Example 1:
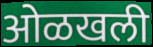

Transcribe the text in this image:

ओळखली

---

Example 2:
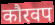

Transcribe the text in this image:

कौरवप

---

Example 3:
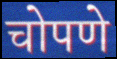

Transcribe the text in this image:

चोपणे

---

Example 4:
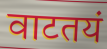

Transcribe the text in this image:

वाटतयं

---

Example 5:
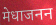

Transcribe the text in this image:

मेधाजनन